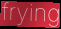
frying